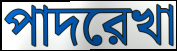
পাদরেখা